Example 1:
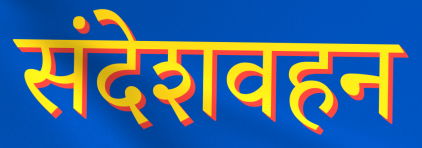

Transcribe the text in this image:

संदेशवहन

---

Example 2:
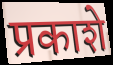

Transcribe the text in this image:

प्रकाशे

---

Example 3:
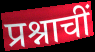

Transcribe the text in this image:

प्रश्नाचीं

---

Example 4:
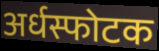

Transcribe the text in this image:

अर्धस्फोटक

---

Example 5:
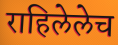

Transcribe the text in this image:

राहिलेलेच